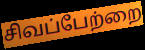
சிவப்பேற்றை